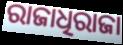
ରାଜାଧିରାଜା